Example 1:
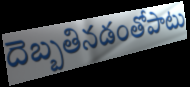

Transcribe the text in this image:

దెబ్బతినడంతోపాటు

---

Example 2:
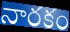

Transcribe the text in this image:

నారకం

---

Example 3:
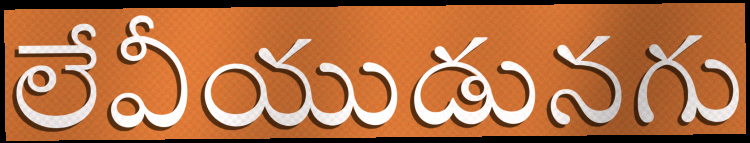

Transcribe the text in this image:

లేవీయుడునగు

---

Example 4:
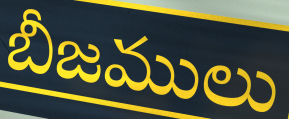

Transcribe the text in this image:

బీజములు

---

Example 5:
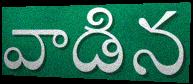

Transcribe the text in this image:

వాడిన